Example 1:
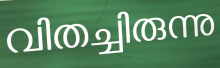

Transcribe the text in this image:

വിതച്ചിരുന്നു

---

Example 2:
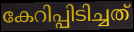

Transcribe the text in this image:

കേറിപ്പിടിച്ചത്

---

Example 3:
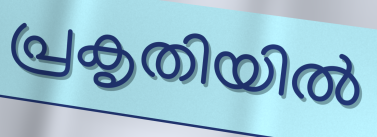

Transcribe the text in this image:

പ്രകൃതിയിൽ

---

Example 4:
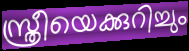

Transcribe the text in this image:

സ്ത്രീയെക്കുറിച്ചും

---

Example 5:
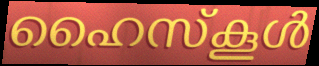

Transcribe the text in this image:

ഹൈസ്‌കൂൾ